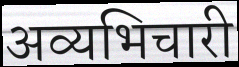
अव्यभिचारी